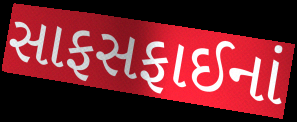
સાફસફાઈનાં